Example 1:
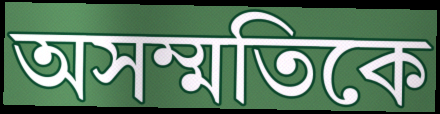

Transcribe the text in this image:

অসম্মতিকে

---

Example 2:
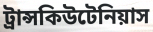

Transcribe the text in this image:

ট্রান্সকিউটেনিয়াস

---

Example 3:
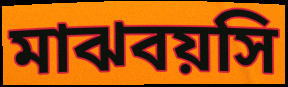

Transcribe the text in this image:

মাঝবয়সি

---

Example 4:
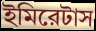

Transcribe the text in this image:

ইমিরেটাস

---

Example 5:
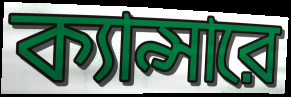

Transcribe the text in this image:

ক্যান্সারে